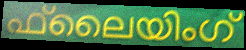
ഫ്‌ലൈയിംഗ്